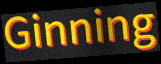
Ginning